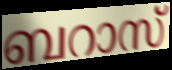
ബറാസ്